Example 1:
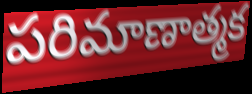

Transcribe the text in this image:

పరిమాణాత్మక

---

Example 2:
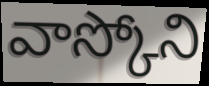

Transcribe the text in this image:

వాస్కోని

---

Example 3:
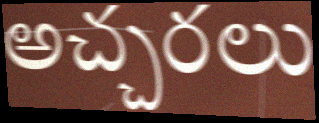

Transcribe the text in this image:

అచ్చరలు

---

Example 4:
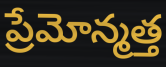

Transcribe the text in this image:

ప్రేమోన్మత్త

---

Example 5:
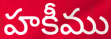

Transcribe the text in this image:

హకీము